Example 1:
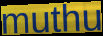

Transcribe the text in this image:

muthu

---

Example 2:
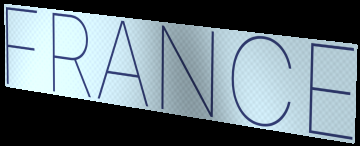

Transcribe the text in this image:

FRANCE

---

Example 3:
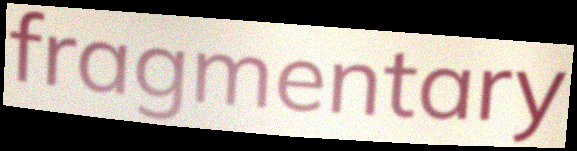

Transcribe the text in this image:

fragmentary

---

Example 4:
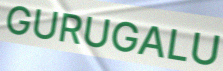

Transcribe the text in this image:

GURUGALU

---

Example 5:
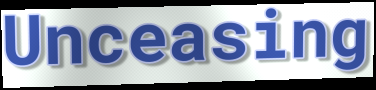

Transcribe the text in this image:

Unceasing